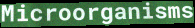
Microorganisms